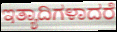
ಇತ್ಯಾದಿಗಳಾದರೆ